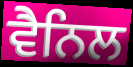
ਵੈਨਿਲ